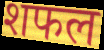
शफल